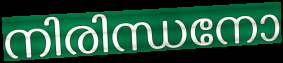
നിരിന്ധനോ